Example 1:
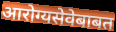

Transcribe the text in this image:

आरोग्यसेवेबाबत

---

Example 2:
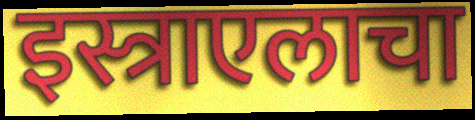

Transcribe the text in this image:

इस्त्राएलाचा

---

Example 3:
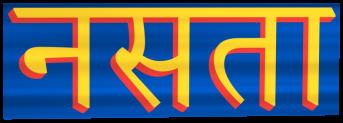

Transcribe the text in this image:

नसता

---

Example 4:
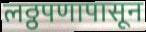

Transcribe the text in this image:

लठ्ठपणापासून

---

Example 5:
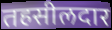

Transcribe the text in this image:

तहसीलदार